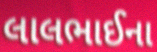
લાલભાઈના